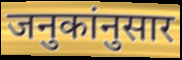
जनुकांनुसार